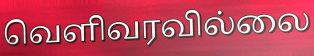
வெளிவரவில்லை